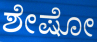
ಶೇಷೋ